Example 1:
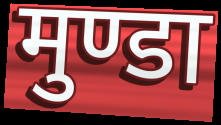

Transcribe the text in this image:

मुण्डा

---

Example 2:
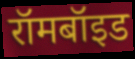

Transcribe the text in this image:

रॉमबॉइड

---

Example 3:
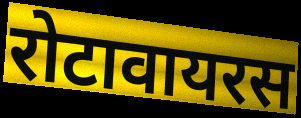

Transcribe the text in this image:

रोटावायरस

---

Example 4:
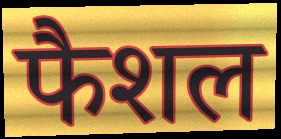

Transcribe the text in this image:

फैशल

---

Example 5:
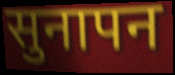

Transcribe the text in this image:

सुनापन